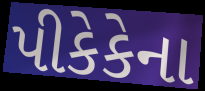
પીકેકેના